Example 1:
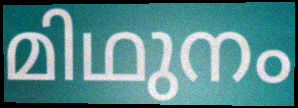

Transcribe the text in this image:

മിഥുനം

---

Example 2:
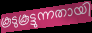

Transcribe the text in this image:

കൂടുകൂട്ടുന്നതായി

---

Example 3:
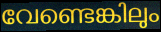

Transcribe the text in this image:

വേണ്ടെങ്കിലും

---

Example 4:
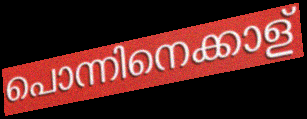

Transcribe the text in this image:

പൊന്നിനെക്കാള്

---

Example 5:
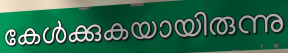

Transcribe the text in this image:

കേൾക്കുകയായിരുന്നു